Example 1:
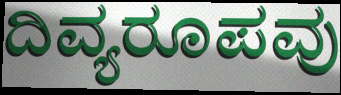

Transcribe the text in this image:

ದಿವ್ಯರೂಪವು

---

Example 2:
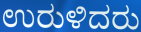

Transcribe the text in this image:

ಉರುಳಿದರು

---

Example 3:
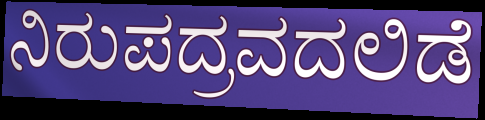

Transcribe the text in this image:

ನಿರುಪದ್ರವದಲಿಡೆ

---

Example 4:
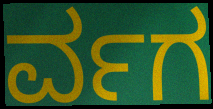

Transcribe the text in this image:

ರ್ವಗ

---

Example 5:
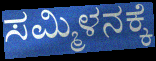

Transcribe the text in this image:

ಸಮ್ಮಿಳನಕ್ಕೆ